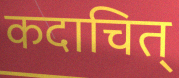
कदाचित्